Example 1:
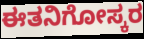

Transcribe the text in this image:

ಈತನಿಗೋಸ್ಕರ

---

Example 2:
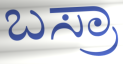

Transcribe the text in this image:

ಬಸ್ರಾ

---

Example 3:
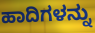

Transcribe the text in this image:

ಹಾದಿಗಳನ್ನು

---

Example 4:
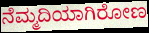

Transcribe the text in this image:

ನೆಮ್ಮದಿಯಾಗಿರೋಣ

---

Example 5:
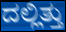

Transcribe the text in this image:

ದಲ್ಲಿತ್ತು